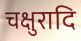
चक्षुरादि